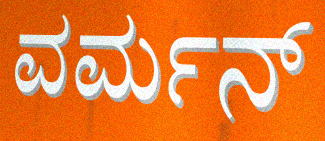
ವರ್ಮನ್